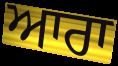
ਆਰਾ